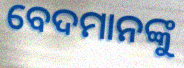
ବେଦମାନଙ୍କୁ